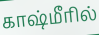
காஷ்மீரில்